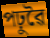
পঢ়ুৱৈ